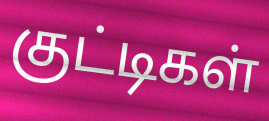
குட்டிகள்